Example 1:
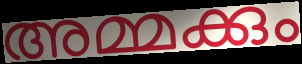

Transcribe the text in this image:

അമ്മക്കും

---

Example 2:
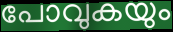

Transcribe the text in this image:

പോവുകയും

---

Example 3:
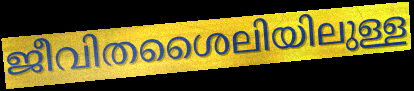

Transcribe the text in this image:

ജീവിതശൈലിയിലുള്ള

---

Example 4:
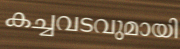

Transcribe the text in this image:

കച്ചവടവുമായി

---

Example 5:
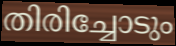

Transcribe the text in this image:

തിരിച്ചോടും